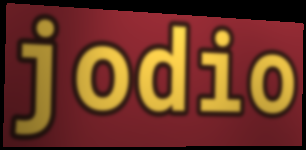
jodio